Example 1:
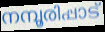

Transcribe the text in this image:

നമ്പൂരിപ്പാട്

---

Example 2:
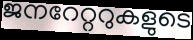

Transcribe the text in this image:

ജനറേറ്ററുകളുടെ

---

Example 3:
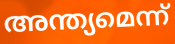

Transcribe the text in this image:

അന്ത്യമെന്ന്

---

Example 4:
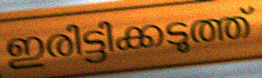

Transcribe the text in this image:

ഇരിട്ടിക്കടുത്ത്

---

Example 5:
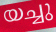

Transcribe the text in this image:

യച്ചു